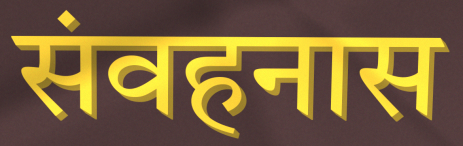
संवहनास